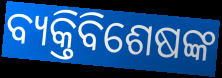
ବ୍ୟକ୍ତିବିଶେଷଙ୍କ